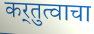
कर्तुत्वाचा